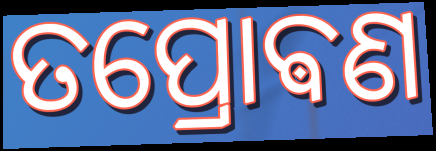
ତପ୍ରୋଵଣ